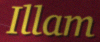
Illam